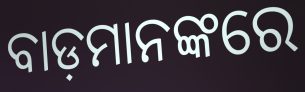
ବାଡ଼ମାନଙ୍କରେ